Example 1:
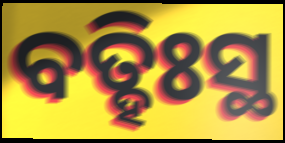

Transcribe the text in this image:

ବତ୍ହିଃସ୍ଥ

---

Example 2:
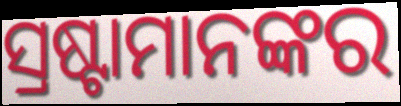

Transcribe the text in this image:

ସ୍ରଷ୍ଟାମାନଙ୍କର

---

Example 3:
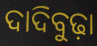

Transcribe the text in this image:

ଦାଦିବୁଢ଼ା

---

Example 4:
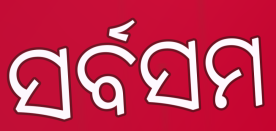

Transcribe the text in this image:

ସର୍ବସମ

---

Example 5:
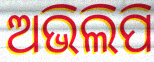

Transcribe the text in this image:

ଅଭିଲିପି